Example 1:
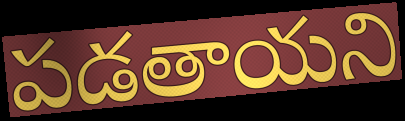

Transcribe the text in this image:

పడతాయని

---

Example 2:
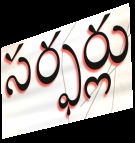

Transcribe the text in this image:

సర్ఫర్లు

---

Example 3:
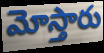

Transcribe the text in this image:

మోస్తారు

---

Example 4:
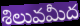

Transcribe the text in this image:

శిలువమీద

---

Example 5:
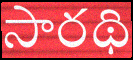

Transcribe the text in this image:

సారథి